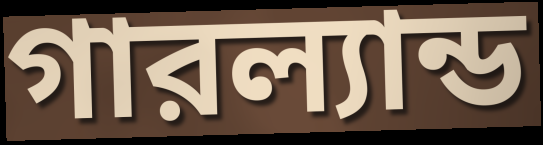
গারল্যান্ড